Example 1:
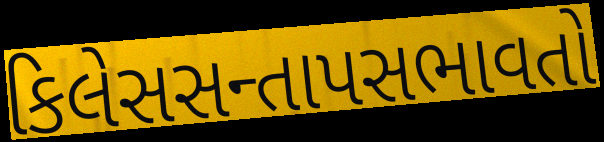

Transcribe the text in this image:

કિલેસસન્તાપસભાવતો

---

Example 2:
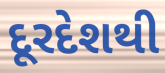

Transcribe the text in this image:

દૂરદેશથી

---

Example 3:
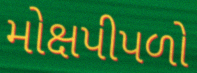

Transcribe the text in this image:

મોક્ષપીપળો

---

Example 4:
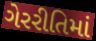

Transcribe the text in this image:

ગેરરીતિમાં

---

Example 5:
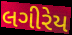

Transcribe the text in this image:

લગીરેય